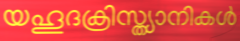
യഹൂദക്രിസ്ത്യാനികൾ